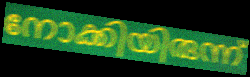
നോക്കിയിരുന്ന്